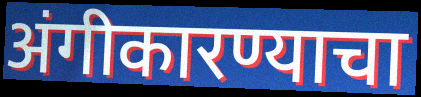
अंगीकारण्याचा